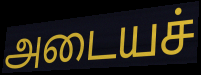
அடையச்